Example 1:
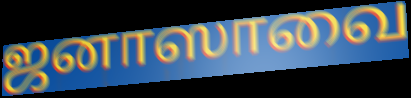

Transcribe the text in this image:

ஜனாஸாவை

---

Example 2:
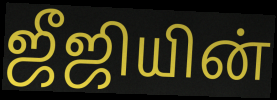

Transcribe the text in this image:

ஜீஜியின்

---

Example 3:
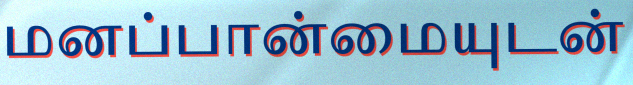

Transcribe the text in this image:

மனப்பான்மையுடன்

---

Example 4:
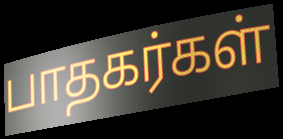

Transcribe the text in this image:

பாதகர்கள்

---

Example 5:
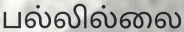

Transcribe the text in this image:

பல்லில்லை